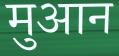
मुआन